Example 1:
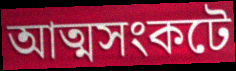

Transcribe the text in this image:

আত্মসংকটে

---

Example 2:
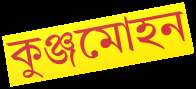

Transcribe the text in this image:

কুঞ্জমোহন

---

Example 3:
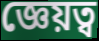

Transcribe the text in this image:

জ্ঞেয়ত্ব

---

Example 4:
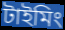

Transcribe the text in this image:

টাইমিং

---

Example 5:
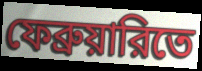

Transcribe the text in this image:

ফেব্রুয়ারিতে